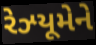
રેઝ્યૂમેને